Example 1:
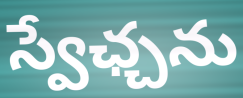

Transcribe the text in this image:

స్వేఛ్చను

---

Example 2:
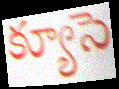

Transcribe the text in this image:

క్యూసె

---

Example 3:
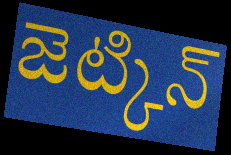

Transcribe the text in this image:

జెట్కిన్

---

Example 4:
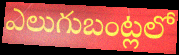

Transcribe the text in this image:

ఎలుగుబంట్లలో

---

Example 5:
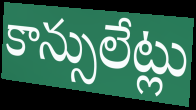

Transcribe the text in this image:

కాన్సులేట్లు